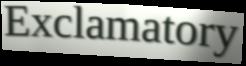
Exclamatory